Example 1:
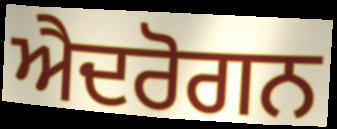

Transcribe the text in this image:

ਐਦਰੋਗਨ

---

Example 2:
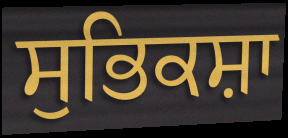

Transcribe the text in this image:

ਸੁਭਿਕਸ਼ਾ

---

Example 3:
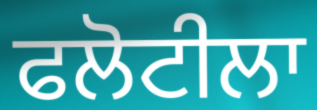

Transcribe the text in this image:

ਫਲੋਟੀਲਾ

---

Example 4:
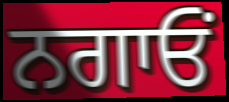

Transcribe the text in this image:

ਨਗਾਓਂ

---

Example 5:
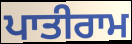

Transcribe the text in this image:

ਪਾਤੀਰਾਮ